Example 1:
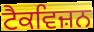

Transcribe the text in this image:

ਟੈਕਵਿਜ਼ਨ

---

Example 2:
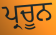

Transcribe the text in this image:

ਪ੍ਰਚੂਨ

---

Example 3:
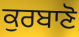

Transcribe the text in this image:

ਕੁਰਬਾਣੋ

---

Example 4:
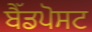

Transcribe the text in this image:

ਬੈੱਡਪੋਸਟ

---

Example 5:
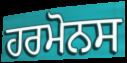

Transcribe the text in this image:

ਹਰਮੋਨਸ